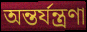
অন্তর্যন্ত্রণা